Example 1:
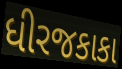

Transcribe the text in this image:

ધીરજકાકા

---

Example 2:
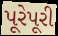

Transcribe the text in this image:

પૂરેપૂરી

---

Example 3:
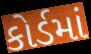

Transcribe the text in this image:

કોર્ડમાં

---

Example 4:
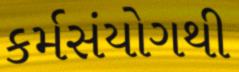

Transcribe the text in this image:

કર્મસંયોગથી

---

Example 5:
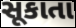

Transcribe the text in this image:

સૂકાતા